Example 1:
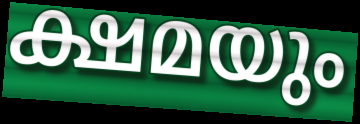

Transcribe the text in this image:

ക്ഷമയും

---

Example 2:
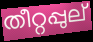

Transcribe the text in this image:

തീറ്റപ്പുല്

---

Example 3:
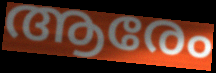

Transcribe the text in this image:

ആരേം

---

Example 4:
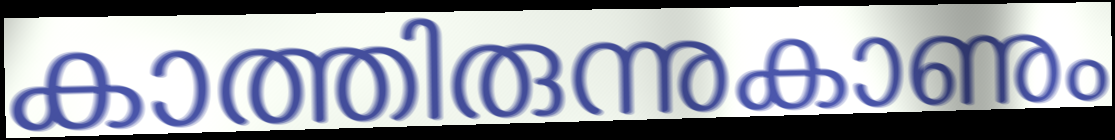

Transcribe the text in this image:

കാത്തിരുന്നുകാണും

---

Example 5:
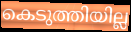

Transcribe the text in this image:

കെടുത്തിയില്ല